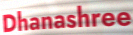
Dhanashree